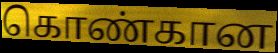
கொண்கான